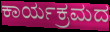
ಕಾರ್ಯಕ್ರಮದ